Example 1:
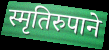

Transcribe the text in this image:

स्मृतिरुपाने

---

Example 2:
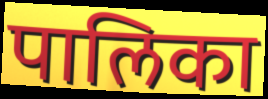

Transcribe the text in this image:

पालिका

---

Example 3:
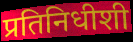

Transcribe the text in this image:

प्रतिनिधीशी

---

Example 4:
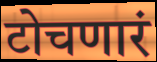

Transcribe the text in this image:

टोचणारं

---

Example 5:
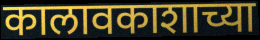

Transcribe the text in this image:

कालावकाशाच्या